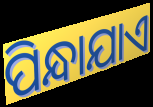
ପିନ୍ଧାଯାଏ